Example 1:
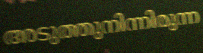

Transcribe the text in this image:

അടുത്തുനിന്നിരുന്ന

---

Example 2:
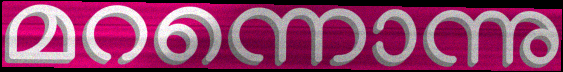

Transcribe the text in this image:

മറന്നൊന്നു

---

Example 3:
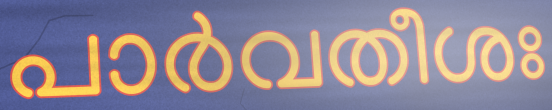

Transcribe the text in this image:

പാർവതീശഃ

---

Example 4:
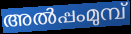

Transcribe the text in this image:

അൽപ്പംമുമ്പ്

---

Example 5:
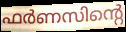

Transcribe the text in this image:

ഫർണസിന്റെ